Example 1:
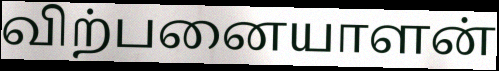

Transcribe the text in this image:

விற்பனையாளன்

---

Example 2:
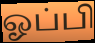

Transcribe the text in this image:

ஓப்பி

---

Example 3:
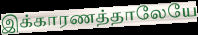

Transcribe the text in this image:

இக்காரணத்தாலேயே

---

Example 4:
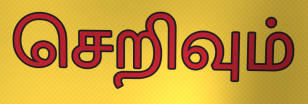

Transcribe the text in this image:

செறிவும்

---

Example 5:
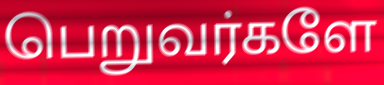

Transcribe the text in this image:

பெறுவர்களே